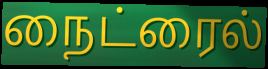
நைட்ரைல்